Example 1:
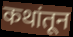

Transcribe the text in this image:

कथांतून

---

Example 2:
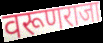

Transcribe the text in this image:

वरूणराजा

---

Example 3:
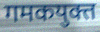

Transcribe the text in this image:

गमकयुक्त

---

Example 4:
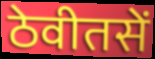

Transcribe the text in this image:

ठेवीतसें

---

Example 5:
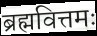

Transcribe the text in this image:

ब्रह्मवित्तमः